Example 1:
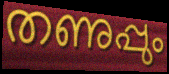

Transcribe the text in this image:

തണുപ്പും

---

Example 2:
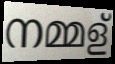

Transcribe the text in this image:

നമ്മള്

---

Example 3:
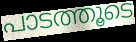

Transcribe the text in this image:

പാടത്തൂടെ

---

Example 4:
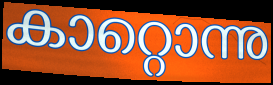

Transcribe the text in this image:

കാറ്റൊന്നു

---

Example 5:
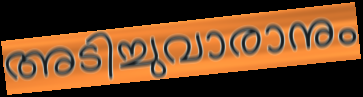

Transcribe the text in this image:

അടിച്ചുവാരാനും